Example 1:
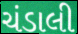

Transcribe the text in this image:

ચંડાલી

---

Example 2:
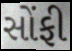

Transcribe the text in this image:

સોંફી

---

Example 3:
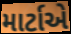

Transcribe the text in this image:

માર્ટાએ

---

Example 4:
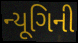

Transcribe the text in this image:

ન્યૂગિની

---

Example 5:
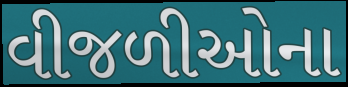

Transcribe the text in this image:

વીજળીઓના